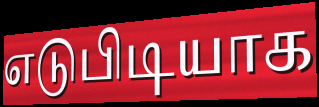
எடுபிடியாக